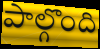
పాల్గొంది